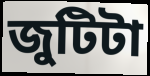
জুটিটা